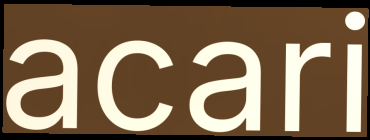
acari